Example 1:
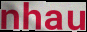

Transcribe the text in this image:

nhau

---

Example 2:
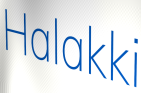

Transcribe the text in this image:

Halakki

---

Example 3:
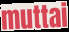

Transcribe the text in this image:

muttai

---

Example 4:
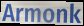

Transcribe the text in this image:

Armonk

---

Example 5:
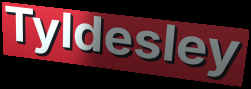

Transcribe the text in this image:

Tyldesley